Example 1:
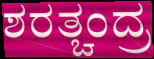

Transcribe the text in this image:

ಶರತ್ಚಂದ್ರ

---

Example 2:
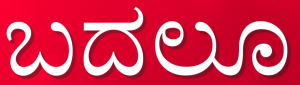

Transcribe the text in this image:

ಬದಲೂ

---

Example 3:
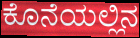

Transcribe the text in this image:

ಕೊನೆಯಲ್ಲಿನ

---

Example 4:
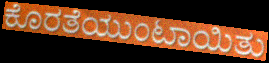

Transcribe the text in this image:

ಕೊರತೆಯುಂಟಾಯಿತು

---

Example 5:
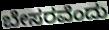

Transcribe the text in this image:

ಬೇಸರವೆಂದು